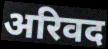
अरिवद